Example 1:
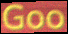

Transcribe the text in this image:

Goo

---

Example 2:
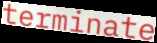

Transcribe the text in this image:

terminate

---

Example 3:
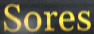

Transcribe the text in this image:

Sores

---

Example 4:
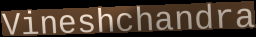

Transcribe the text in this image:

Vineshchandra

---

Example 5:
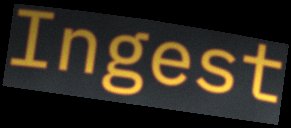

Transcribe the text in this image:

Ingest